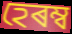
হেৰম্ব